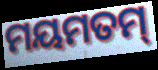
ମୟମତମ୍